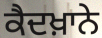
ਕੈਦਖ਼ਾਨੇ